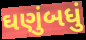
ઘણુંબધું